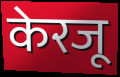
केरजू